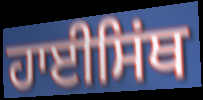
ਹਾਈਸਿਂਥ